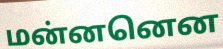
மன்னனென